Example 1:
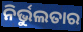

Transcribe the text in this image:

ନିର୍ଭୁଲତାର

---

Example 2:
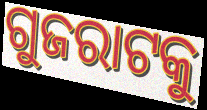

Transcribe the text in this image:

ଗୁଜରାଟକୁ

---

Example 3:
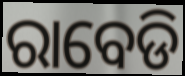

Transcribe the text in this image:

ରାବେଡି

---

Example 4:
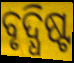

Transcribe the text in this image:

ବୃଦ୍ଧିଷ୍ଟ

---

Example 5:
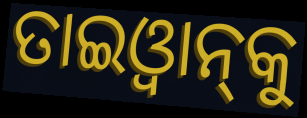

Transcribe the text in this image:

ତାଇଓ୍ବାନ୍‌କୁ